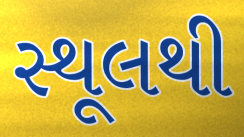
સ્થૂલથી